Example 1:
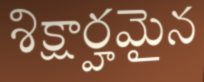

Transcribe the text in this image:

శిక్షార్హమైన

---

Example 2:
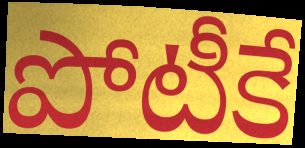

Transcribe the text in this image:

పోటీకే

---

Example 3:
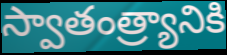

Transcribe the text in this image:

స్వాతంత్ర్యానికి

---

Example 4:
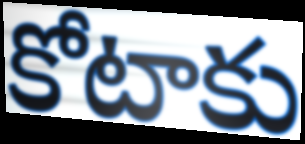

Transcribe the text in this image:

కోటాకు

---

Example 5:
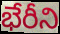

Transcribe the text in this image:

భేరీని